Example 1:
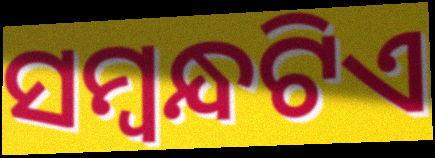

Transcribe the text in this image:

ସମ୍ବନ୍ଧଟିଏ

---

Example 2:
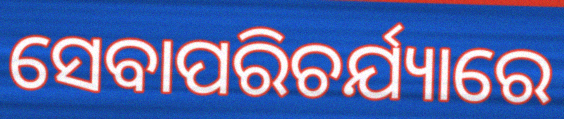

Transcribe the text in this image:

ସେବାପରିଚର୍ଯ୍ୟାରେ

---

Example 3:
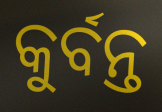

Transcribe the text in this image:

କୁର୍ବନ୍ତ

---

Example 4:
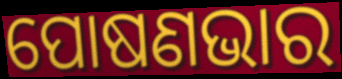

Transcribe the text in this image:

ପୋଷଣଭାର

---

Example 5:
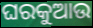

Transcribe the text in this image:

ଘରକୁଆଉ